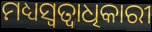
ମଧ୍ୟସ୍ୱତ୍ୱାଧିକାରୀ